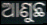
ଆଣୁଛ